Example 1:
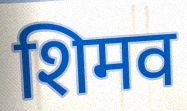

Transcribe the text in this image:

शिमव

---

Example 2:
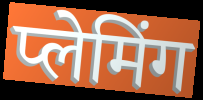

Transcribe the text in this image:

प्लेमिंग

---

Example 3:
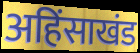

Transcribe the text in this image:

अहिंसाखंड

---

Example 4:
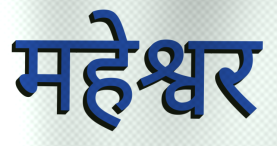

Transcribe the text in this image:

महेश्वर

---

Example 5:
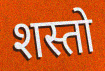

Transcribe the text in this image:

शस्तो